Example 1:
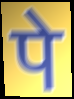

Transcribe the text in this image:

पे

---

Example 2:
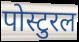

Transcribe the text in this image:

पोस्टुरल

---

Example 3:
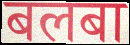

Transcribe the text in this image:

बलबा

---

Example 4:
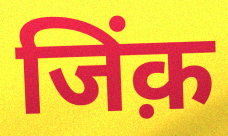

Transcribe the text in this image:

जिंक़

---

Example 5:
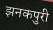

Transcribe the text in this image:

झनकपुरी